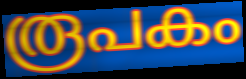
രൂപകം